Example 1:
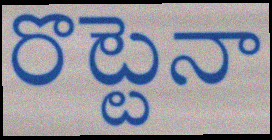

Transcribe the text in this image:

రొట్టెనా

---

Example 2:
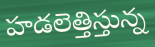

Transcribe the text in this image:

హడలెత్తిస్తున్న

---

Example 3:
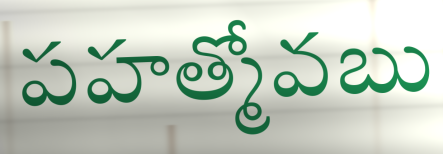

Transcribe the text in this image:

పహత్మోవబు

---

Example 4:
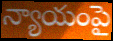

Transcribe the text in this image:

న్యాయంపై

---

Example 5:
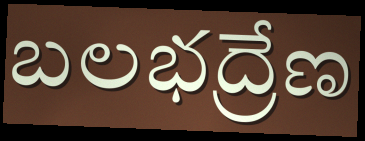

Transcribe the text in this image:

బలభద్రేణ